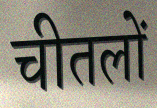
चीतलों